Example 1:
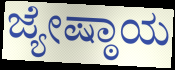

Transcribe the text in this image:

ಜ್ಯೇಷ್ಠಾಯ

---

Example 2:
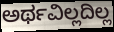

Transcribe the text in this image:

ಅರ್ಥವಿಲ್ಲದಿಲ್ಲ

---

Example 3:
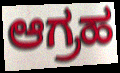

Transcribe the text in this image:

ಆಗ್ರಹ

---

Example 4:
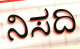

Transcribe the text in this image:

ನಿಸದಿ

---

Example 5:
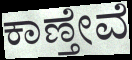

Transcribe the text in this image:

ಕಾಣ್ತೇವೆ